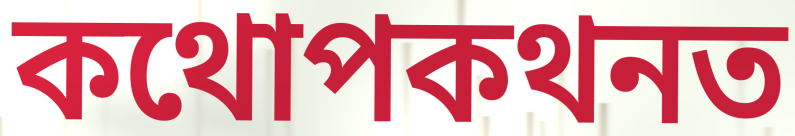
কথোপকথনত